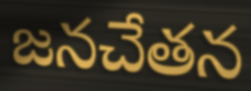
జనచేతన